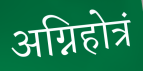
अग्निहोत्रं